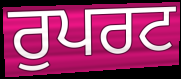
ਰੁਪਰਟ